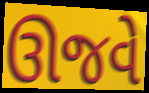
ઊજવે